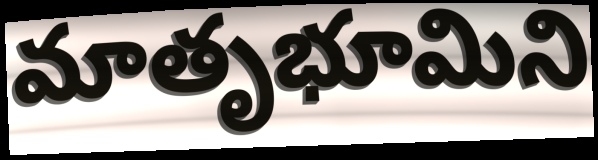
మాతృభూమిని